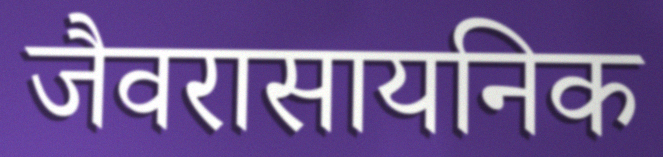
जैवरासायनिक